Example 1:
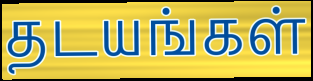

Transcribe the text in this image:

தடயங்கள்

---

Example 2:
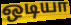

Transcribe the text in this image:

ஒடியா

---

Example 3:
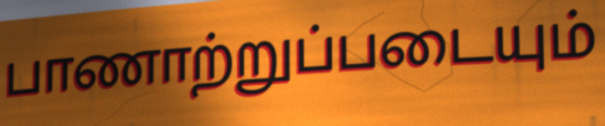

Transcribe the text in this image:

பாணாற்றுப்படையும்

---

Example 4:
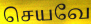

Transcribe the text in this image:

செயவே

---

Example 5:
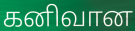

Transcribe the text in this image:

கனிவான